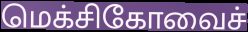
மெக்சிகோவைச்